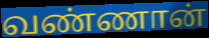
வண்ணான்